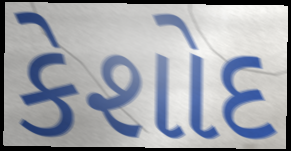
કેશોદ